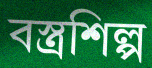
বস্ত্ৰশিল্প